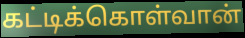
கட்டிக்கொள்வான்